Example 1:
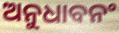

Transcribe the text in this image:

ଅନୁଧାବନଂ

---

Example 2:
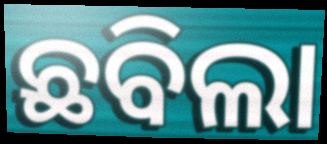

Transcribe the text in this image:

ଛବିଲା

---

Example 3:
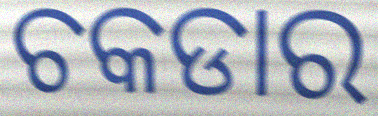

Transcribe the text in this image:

ଚକଡାର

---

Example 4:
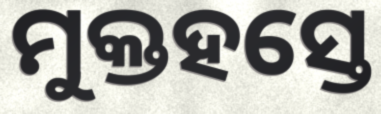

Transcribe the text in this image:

ମୁକ୍ତହସ୍ତେ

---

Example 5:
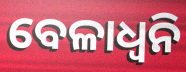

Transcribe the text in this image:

ବେଳାଧ୍ୱନି